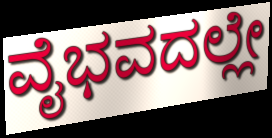
ವೈಭವದಲ್ಲೇ